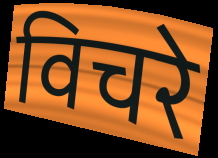
विचरे